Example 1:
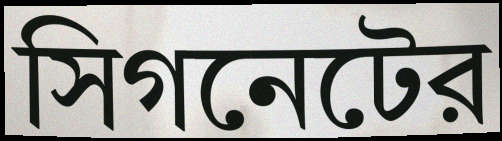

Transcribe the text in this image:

সিগনেটের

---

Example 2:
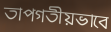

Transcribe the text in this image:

তাপগতীয়ভাবে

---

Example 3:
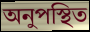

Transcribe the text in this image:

অনুপস্থিত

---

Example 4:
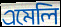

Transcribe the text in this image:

এমেলি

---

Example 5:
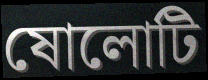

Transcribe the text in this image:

ষোলোটি